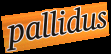
pallidus